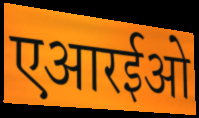
एआरईओ